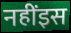
नहींइस